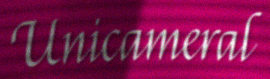
Unicameral